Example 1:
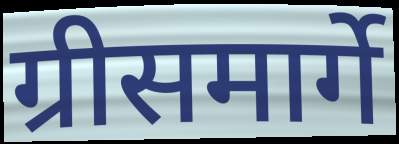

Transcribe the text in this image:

ग्रीसमार्गे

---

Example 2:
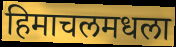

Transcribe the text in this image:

हिमाचलमधला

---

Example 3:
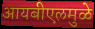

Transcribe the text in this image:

आयबीएलमुळे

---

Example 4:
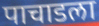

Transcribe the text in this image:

पाचाडला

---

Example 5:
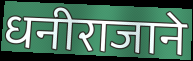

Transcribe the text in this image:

धनीराजाने